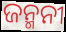
ଜନ୍ମନୀ